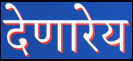
देणारेय